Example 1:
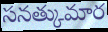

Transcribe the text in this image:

సనత్కుమార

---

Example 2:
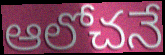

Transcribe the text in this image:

ఆలోచనే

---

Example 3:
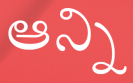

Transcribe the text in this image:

ఆన్ని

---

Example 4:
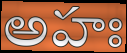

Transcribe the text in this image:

అహః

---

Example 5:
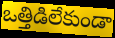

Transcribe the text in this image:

ఒత్తిడిలేకుండా